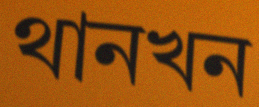
থানখন